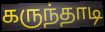
கருந்தாடி